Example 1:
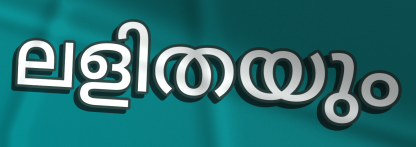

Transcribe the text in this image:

ലളിതയും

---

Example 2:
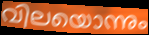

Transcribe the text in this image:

വിലയൊന്നും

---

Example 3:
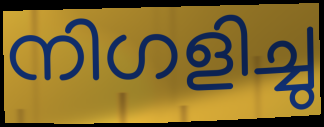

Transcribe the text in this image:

നിഗളിച്ചു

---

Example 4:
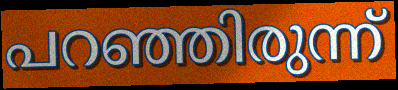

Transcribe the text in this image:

പറഞ്ഞിരുന്ന്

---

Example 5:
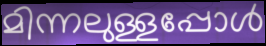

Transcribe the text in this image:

മിന്നലുള്ളപ്പോൾ